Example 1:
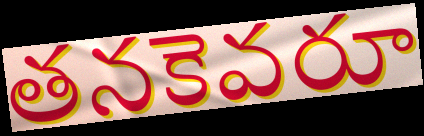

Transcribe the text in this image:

తనకెవరూ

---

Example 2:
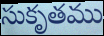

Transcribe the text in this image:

సుకృతము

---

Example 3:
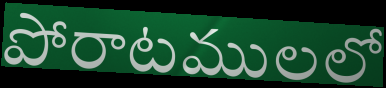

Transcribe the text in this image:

పోరాటములలో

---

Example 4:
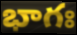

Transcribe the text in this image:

భాగః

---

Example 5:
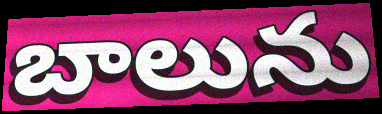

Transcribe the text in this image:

బాలును